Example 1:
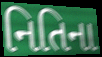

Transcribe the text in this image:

નિતિના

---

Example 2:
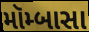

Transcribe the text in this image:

મૉમ્બાસા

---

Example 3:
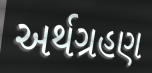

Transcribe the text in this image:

અર્થગ્રહણ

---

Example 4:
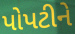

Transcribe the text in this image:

પોપટીને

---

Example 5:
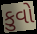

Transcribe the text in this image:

કુવો